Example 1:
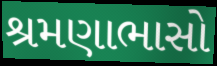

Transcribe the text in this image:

શ્રમણાભાસો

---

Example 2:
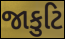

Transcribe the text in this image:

જાકુટિ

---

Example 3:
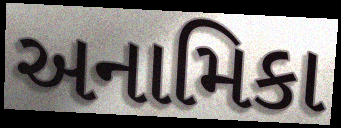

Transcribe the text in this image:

અનામિકા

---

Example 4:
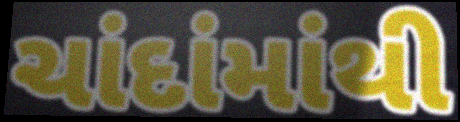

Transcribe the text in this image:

ચાંદાંમાંથી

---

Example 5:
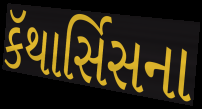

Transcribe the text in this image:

કૅથાર્સિસના